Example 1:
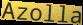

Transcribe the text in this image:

Azolla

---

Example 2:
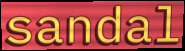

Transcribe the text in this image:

sandal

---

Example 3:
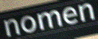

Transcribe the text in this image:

nomen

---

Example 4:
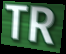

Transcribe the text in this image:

TR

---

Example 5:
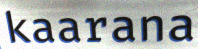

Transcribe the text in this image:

kaarana